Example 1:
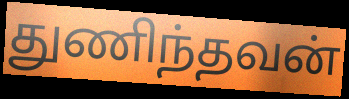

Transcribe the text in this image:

துணிந்தவன்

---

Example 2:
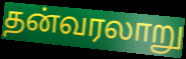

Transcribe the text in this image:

தன்வரலாறு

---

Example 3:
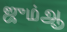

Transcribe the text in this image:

ஜும்ஆ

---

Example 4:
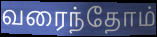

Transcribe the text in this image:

வரைந்தோம்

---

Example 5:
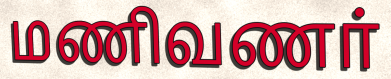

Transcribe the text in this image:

மணிவணர்